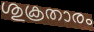
ശുക്രതാരം